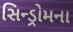
સિન્ડ્રોમના